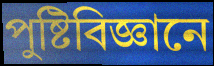
পুষ্টিবিজ্ঞানে